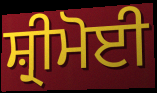
ਸ਼੍ਰੀਮੋਈ